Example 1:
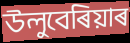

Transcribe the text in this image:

উলুবেৰিয়াৰ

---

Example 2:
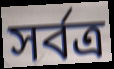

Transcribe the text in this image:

সৰ্বত্ৰ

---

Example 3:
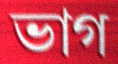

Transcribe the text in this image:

ভাগ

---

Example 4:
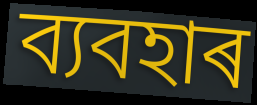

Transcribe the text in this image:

ব্যবহাৰ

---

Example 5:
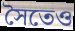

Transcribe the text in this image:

সৈতেও